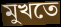
মুখতে